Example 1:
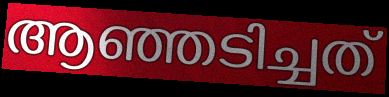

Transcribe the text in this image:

ആഞ്ഞടിച്ചത്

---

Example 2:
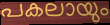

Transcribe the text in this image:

പകലായും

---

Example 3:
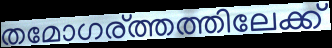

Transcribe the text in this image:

തമോഗര്ത്തത്തിലേക്ക്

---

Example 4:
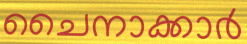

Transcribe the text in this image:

ചൈനാക്കാർ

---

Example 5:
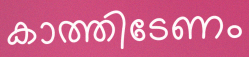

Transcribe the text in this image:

കാത്തിടേണം